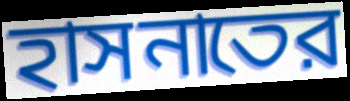
হাসনাতের